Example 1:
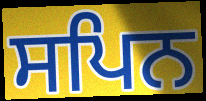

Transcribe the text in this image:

ਸਪਿਨ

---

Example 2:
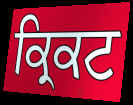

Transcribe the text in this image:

ਕ੍ਰਿਕਟ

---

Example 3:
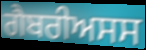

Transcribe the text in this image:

ਗੈਬਰੀਅਸਸ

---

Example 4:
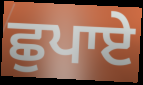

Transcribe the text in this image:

ਛੁਪਾਏ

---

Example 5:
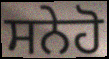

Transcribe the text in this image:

ਸਨੇਹੋ